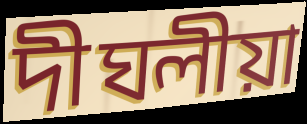
দীঘলীয়া